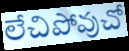
లేచిపోవుచో